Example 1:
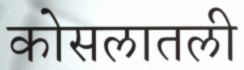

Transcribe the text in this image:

कोसलातली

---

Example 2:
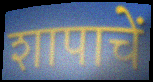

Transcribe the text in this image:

शापाचें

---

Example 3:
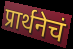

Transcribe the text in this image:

प्रार्थनेचं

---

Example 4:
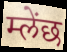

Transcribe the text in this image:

म्लेंछ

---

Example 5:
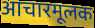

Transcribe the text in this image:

आचारमूलक